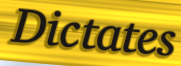
Dictates